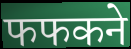
फफकने